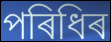
পৰিধিৰ